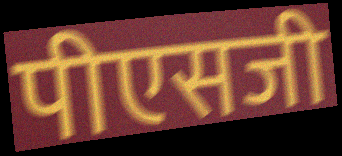
पीएसजी